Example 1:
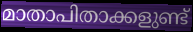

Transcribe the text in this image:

മാതാപിതാക്കളുണ്ട്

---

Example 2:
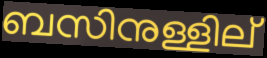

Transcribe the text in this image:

ബസിനുള്ളില്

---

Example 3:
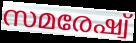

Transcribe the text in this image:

സമരേഷ്വ്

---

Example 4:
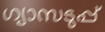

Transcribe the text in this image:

ഗ്യാസടുപ്പ്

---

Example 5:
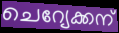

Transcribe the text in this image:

ചെറ്യേക്കന്